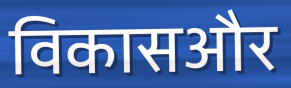
विकासऔर